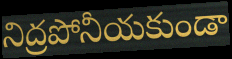
నిద్రపోనీయకుండా